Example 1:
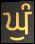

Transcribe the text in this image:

ਘੁੰ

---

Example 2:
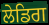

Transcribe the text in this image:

ਲੇਡਿਗ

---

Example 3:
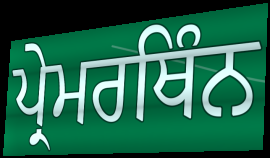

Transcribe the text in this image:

ਪ੍ਰੇਮਰਥਿੰਨ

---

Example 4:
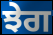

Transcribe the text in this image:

ਝੇਗ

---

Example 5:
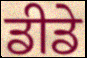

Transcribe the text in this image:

ਡੀਡੇ